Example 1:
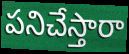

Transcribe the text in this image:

పనిచేస్తారా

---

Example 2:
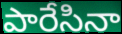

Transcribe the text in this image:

పారేసినా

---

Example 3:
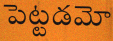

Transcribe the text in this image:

పెట్టడమో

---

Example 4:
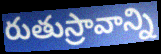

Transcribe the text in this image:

రుతుస్రావాన్ని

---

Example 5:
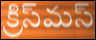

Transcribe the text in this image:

క్రిస్‌మస్